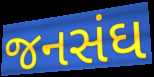
જનસંઘ